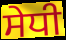
ਸੇਧੀ